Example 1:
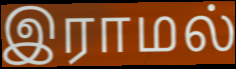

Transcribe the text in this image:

இராமல்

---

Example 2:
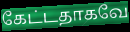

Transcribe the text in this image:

கேட்டதாகவே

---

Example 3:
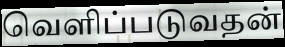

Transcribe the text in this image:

வெளிப்படுவதன்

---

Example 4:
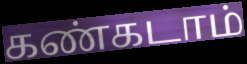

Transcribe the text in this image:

கண்கடாம்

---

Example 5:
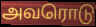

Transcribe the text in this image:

அவரொடு